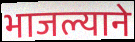
भाजल्याने